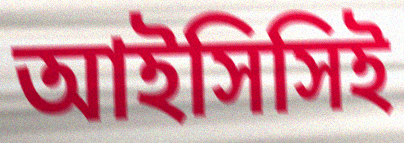
আইসিসিই